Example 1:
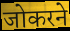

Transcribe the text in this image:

जोकरने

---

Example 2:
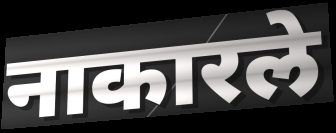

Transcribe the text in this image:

नाकारले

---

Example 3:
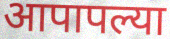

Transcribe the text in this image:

आपापल्या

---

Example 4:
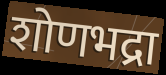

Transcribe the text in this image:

शोणभद्रा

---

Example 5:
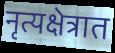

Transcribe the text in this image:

नृत्यक्षेत्रात